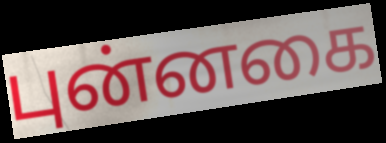
புன்னகை